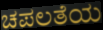
ಚಪಲತೆಯ